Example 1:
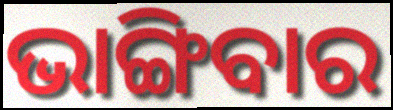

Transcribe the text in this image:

ଭାଙ୍ଗିବାର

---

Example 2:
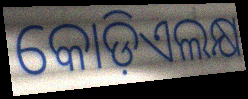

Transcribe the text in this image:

କୋଡ଼ିଏଲକ୍ଷ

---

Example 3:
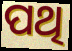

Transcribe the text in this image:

ପଥି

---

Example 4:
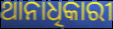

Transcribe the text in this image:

ଥାନାଧିକାରୀ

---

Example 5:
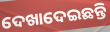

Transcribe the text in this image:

ଦେଖାଦେଇଛନ୍ତି